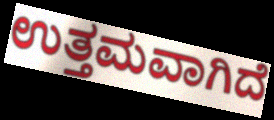
ಉತ್ತಮವಾಗಿದೆ